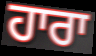
ਹਾਰਾ